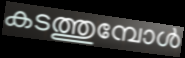
കടത്തുമ്പോൾ